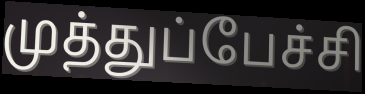
முத்துப்பேச்சி